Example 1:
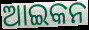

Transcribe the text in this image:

ଆଇକନ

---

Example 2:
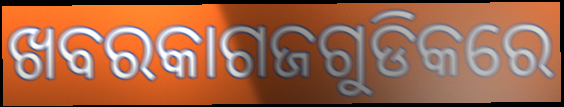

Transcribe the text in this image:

ଖବରକାଗଜଗୁଡିକରେ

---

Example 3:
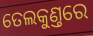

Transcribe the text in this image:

ତେଲକୁଣ୍ତରେ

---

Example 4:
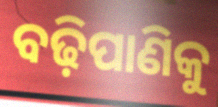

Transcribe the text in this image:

ବଢ଼ିପାଣିକୁ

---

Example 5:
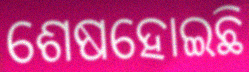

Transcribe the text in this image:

ଶେଷହୋଇଛି